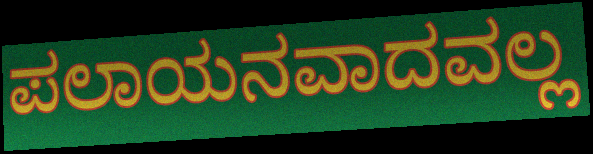
ಪಲಾಯನವಾದವಲ್ಲ